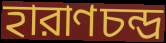
হারাণচন্দ্র